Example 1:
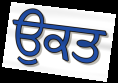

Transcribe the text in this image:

ਉਕਤ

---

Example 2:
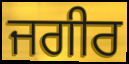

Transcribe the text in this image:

ਜਗੀਰ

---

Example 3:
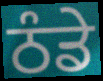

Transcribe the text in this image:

ਠੰਡੇ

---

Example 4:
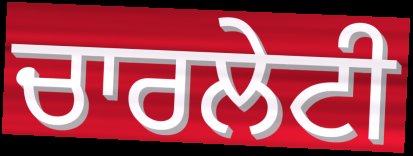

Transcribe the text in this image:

ਚਾਰਲੇਟੀ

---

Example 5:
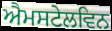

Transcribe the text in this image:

ਐਮਸਟੇਲਵਿਨ